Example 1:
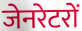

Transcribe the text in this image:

जेनरेटरों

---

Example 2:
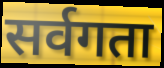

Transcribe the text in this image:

सर्वगता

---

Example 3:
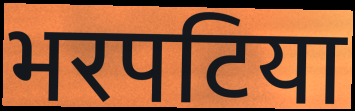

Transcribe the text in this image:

भरपटिया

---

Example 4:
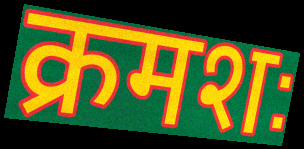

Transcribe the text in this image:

क्रमशः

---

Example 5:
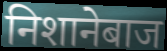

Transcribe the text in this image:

निशानेबाज